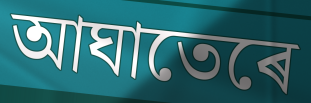
আঘাতেৰে